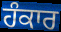
ਹੰਕਾਰ